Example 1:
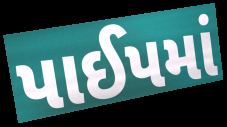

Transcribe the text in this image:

પાઈપમાં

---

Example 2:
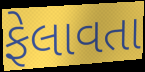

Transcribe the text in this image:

ફેલાવતા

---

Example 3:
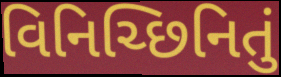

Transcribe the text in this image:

વિનિચ્છિનિતું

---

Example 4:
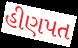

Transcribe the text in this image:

હીણપત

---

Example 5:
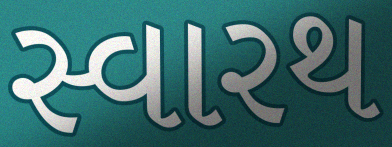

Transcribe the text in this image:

સ્વારથ